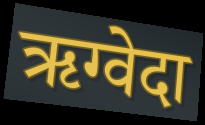
ऋग्वेदा